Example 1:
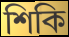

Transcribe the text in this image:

শিকি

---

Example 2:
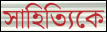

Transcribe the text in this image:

সাহিত্যিকে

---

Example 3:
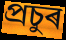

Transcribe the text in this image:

প্ৰচুৰ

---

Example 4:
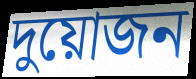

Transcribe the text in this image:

দুয়োজন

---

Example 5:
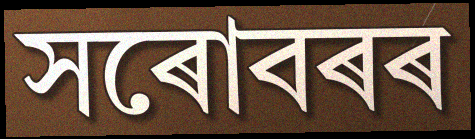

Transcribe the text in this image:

সৰোবৰৰ